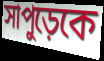
সাপুড়েকে